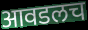
आवडलच